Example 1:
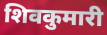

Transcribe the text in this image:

शिवकुमारी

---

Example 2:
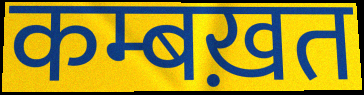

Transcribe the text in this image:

कम्बख़त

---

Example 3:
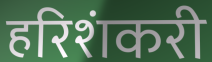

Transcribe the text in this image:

हरिशंकरी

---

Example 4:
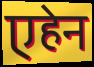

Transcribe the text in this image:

एहेन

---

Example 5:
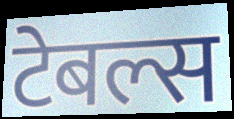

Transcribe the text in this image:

टेबल्स